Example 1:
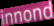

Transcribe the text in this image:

innond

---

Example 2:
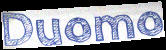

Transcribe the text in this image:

Duomo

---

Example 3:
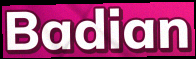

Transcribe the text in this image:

Badian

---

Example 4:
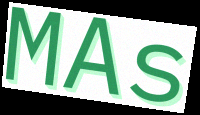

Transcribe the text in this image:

MAs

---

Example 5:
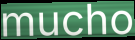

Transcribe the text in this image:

mucho